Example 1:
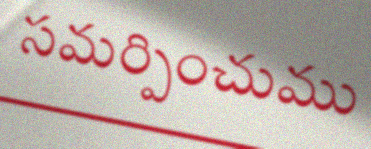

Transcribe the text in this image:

సమర్పించుము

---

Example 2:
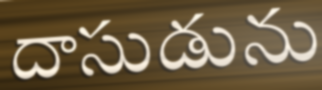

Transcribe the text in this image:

దాసుడును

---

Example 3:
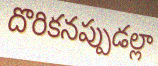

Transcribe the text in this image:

దొరికనప్పుడల్లా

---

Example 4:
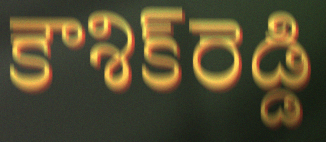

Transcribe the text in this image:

కౌశిక్‌రెడ్డి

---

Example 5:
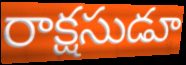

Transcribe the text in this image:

రాక్షసుడూ